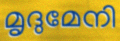
മൃദുമേനി